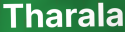
Tharala